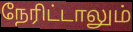
நேரிட்டாலும்